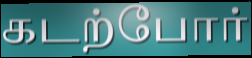
கடற்போர்